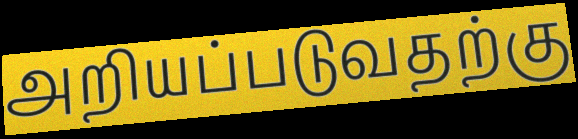
அறியப்படுவதற்கு